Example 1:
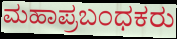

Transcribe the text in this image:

ಮಹಾಪ್ರಬಂಧಕರು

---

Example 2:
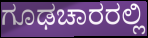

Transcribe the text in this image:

ಗೂಢಚಾರರಲ್ಲಿ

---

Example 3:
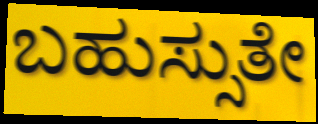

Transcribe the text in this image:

ಬಹುಸ್ಸುತೇ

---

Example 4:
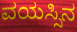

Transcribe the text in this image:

ವಯಸ್ಸಿನ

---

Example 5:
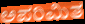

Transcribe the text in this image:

ಅಪರಿಮಿತ